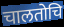
चालतोचि